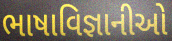
ભાષાવિજ્ઞાનીઓ